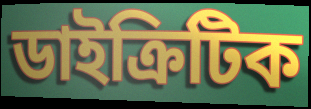
ডাইক্ৰিটিক